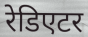
रेडिएटर